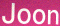
Joon